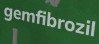
gemfibrozil